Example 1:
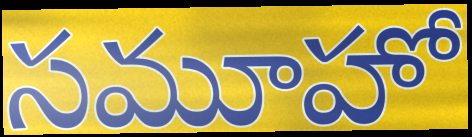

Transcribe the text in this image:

సమూహో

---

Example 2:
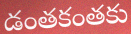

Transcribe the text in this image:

డంతకంతకు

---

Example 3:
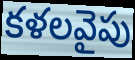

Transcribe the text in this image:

కళలవైపు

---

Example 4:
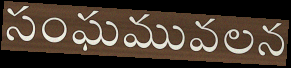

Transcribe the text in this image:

సంఘమువలన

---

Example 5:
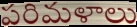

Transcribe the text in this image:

పరిమళాలు